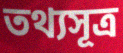
তথ্যসূত্র